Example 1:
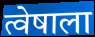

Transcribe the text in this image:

त्वेषाला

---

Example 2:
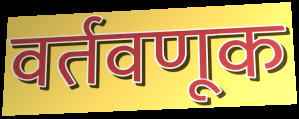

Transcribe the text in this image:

वर्तवणूक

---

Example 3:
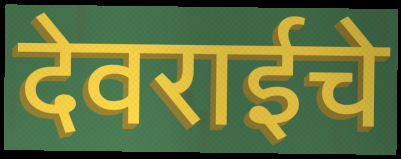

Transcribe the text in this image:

देवराईचे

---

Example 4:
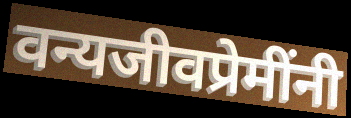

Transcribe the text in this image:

वन्यजीवप्रेमींनी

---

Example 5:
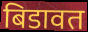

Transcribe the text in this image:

बिडावत